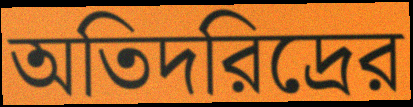
অতিদরিদ্রের